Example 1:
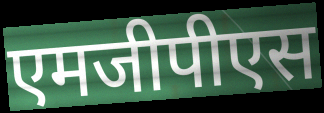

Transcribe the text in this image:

एमजीपीएस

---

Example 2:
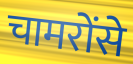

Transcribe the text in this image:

चामरोंसे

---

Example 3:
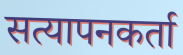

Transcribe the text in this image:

सत्यापनकर्ता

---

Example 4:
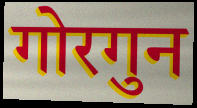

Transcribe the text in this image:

गोरगुन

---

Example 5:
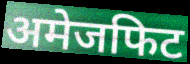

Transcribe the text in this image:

अमेजफिट